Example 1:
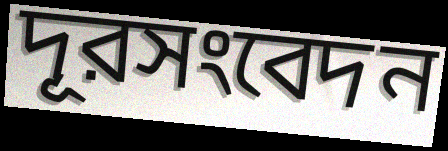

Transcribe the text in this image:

দূরসংবেদন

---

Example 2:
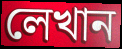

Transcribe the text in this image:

লেখান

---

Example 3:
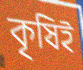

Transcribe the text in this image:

কৃষিই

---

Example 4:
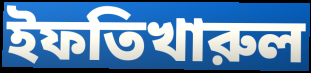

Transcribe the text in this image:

ইফতিখারুল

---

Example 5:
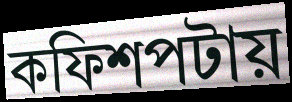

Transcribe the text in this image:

কফিশপটায়